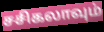
சசிகலாவும்